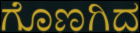
ಗೊಣಗಿದ